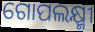
ଗୋପଲକ୍ଷ୍ମୀ